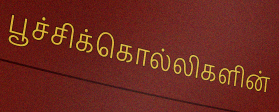
பூச்சிக்கொல்லிகளின்